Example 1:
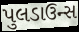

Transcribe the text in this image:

પુલડાઉન્સ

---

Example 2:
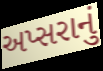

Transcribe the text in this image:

અપ્સરાનું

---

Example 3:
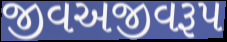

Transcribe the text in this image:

જીવઅજીવરૂપ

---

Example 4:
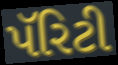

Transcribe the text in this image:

પૅરિટી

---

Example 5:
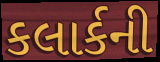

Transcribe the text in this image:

કલાર્કની